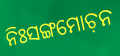
ନିଃସଙ୍ଗମୋଚ଼ନ